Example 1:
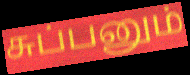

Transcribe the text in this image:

சுப்பனும்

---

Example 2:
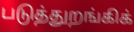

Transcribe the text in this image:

படுத்துறங்கிக்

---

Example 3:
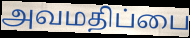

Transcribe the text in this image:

அவமதிப்பை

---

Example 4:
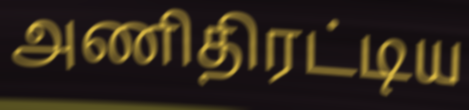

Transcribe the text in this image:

அணிதிரட்டிய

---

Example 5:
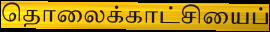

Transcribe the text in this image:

தொலைக்காட்சியைப்